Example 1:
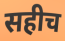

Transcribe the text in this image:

सहीच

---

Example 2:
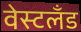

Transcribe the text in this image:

वेस्टलँड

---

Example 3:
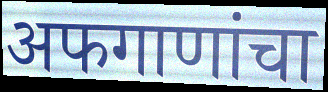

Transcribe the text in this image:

अफगाणांचा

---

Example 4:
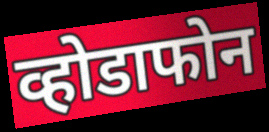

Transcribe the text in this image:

व्होडाफोन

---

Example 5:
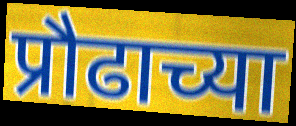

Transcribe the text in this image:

प्रौढाच्या